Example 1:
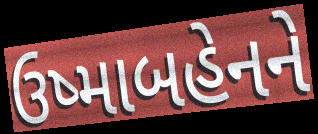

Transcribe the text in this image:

ઉષ્માબહેનને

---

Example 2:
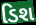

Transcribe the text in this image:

ડિશ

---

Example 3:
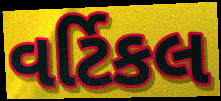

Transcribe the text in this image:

વર્ટિકલ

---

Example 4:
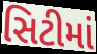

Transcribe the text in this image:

સિટીમાં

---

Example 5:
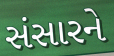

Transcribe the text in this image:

સંસારને